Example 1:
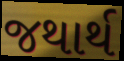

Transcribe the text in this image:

જથાર્થ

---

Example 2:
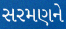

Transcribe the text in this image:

સરમણને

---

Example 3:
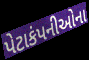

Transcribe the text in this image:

પેટાકંપનીઓના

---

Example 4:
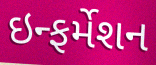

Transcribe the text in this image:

ઇન્ફર્મેશન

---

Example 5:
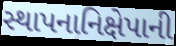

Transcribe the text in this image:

સ્થાપનાનિક્ષેપાની